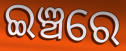
ଇଞ୍ଚରେ